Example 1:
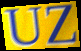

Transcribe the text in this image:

UZ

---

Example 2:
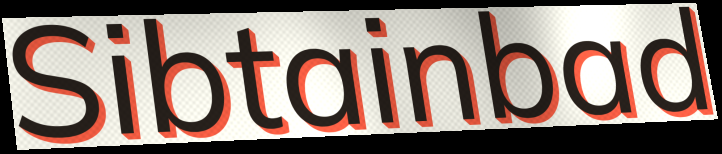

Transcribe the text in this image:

Sibtainbad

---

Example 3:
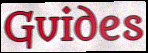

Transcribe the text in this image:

Guides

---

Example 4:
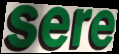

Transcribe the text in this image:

sere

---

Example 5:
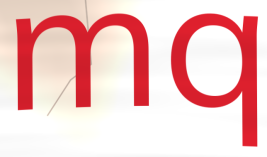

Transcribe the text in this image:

mq